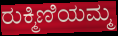
ರುಕ್ಮಿಣಿಯಮ್ಮ